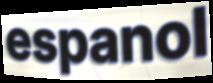
espanol